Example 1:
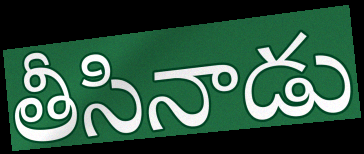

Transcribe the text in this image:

తీసినాడు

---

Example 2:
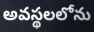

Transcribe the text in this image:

అవస్థలలోను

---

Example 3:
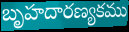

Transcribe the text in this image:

బృహదారణ్యకము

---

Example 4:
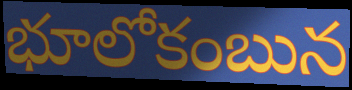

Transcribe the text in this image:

భూలోకంబున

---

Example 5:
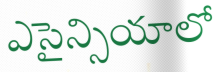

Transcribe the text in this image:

ఎసైన్సియాలో